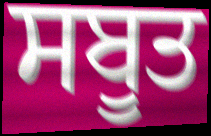
ਸਬੂਤ